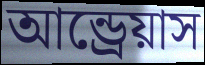
আন্ড্রেয়াস